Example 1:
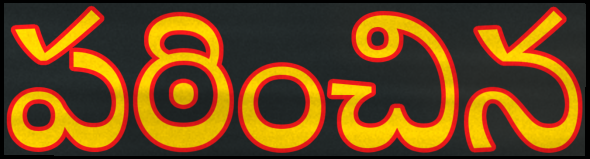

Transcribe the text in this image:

పఠించిన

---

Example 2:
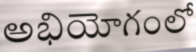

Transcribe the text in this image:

అభియోగంలో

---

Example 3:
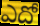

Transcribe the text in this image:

ఎదో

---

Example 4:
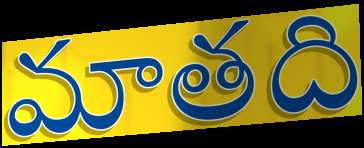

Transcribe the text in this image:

మాతది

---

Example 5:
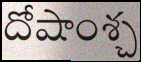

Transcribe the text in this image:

దోషాంశ్చ